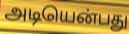
அடியென்பது